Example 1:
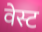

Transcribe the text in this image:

वेस्ट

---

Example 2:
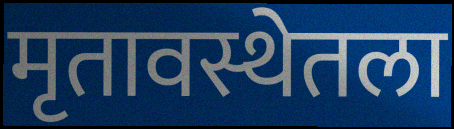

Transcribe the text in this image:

मृतावस्थेतला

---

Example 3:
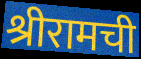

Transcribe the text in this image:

श्रीरामची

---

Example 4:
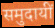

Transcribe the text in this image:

समुदायीं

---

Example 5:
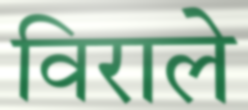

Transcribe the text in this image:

विराले